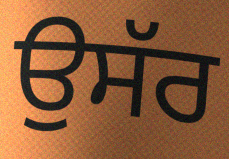
ਉਸੱਰ